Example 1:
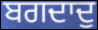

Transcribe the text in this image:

ਬਗਦਾਦੁ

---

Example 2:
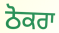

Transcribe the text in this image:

ਠੋਕਰਾ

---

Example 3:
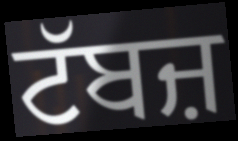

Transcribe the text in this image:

ਟੱਬਜ਼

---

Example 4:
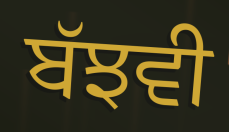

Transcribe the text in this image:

ਬੱਝਵੀ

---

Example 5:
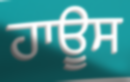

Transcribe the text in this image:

ਹਾਊੁਸ